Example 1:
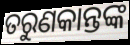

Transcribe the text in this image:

ତରୁଣକାନ୍ତଙ୍କ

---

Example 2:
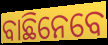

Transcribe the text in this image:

ବାଛିନେବେ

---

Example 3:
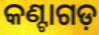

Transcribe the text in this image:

କଣ୍ଟାଗଡ଼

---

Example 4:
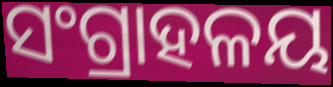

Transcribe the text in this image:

ସଂଗ୍ରାହଳୟ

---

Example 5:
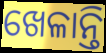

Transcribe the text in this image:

ଖେଳାନ୍ତି